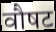
वौषट